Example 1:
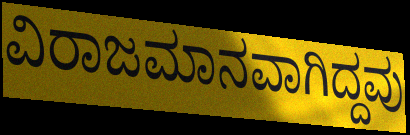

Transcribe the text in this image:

ವಿರಾಜಮಾನವಾಗಿದ್ದವು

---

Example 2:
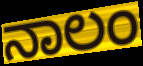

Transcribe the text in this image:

ನಾಲಂ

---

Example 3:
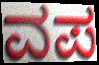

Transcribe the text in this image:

ವಪ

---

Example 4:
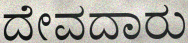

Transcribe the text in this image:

ದೇವದಾರು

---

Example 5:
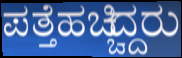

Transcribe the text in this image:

ಪತ್ತೆಹಚ್ಚಿದ್ದರು